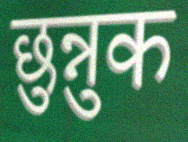
छुन्नुक